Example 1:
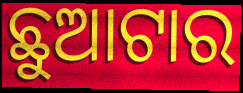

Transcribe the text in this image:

ଛୁଆଟାର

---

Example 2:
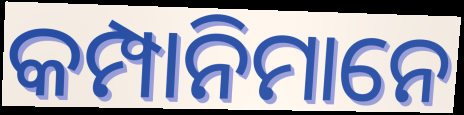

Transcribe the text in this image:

କମ୍ପାନିମାନେ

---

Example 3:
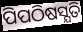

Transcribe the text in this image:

ପିପଠିଷସ୍ଯତି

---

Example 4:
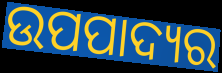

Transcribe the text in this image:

ଉପପାଦ୍ୟର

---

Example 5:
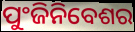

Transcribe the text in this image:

ପୁଂଜିନିବେଶର